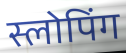
स्लोपिंग